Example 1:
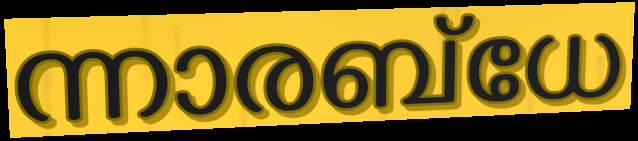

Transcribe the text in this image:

ന്നാരബ്ധേ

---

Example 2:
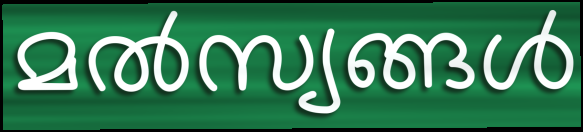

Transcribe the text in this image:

മൽസ്യങ്ങൾ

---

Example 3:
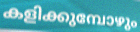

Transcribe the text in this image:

കളിക്കുമ്പോഴും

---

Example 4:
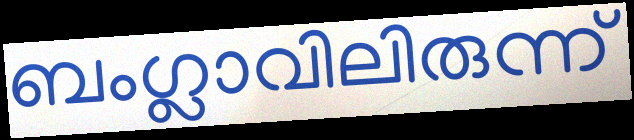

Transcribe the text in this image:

ബംഗ്ലാവിലിരുന്ന്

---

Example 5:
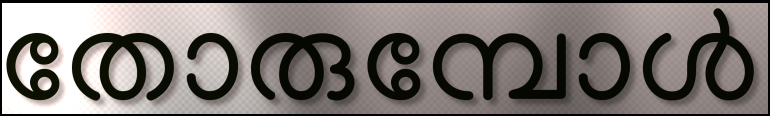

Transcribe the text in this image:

തോരുമ്പോൾ